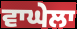
ਵਾਘੇਲਾ